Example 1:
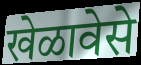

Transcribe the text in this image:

खेळावेसे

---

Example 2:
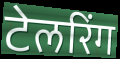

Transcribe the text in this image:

टेलरिंग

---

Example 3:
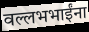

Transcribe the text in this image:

वल्लभभाईंना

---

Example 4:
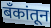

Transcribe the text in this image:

बँकांतून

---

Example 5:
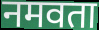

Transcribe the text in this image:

नमवता